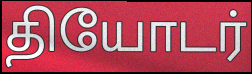
தியோடர்